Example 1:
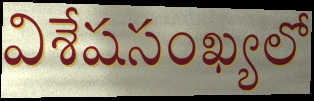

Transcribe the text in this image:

విశేషసంఖ్యలో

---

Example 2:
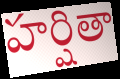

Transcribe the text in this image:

హర్షితా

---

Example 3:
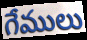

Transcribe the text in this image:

గేములు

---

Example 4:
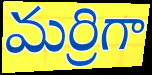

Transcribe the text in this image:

మర్రిగా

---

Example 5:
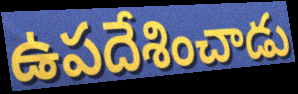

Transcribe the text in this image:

ఉపదేశించాడు